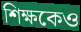
শিক্ষকেও